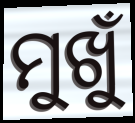
ମୁଖୁଁ